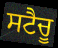
ਸਟੈਚੂ